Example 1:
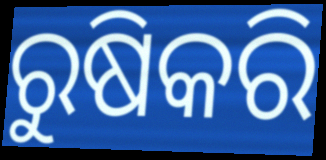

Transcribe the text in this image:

ରୁଷିକରି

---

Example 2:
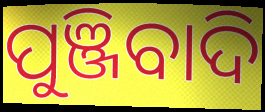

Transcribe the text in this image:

ପୁଞ୍ଜିବାଦି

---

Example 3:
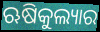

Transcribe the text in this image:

ଋଷିକୁଲ୍ୟାର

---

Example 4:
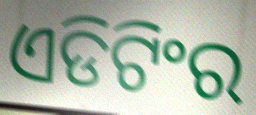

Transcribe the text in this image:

ଏଡିଟିଂର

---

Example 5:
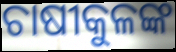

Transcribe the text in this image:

ଚାଷୀକୁଳଙ୍କ